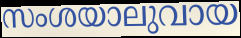
സംശയാലുവായ